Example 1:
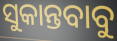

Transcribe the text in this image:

ସୁକାନ୍ତବାବୁ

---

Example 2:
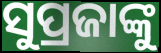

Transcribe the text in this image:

ସୁପ୍ରଜାଙ୍କୁ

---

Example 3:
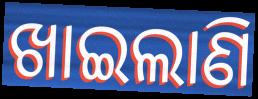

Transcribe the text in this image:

ଖାଇଲାଣି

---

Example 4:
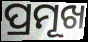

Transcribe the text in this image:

ପ୍ରମୂଖ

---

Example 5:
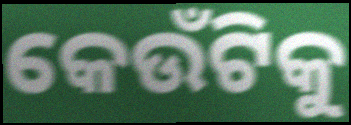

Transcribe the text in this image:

କେଉଁଟିକୁ